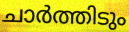
ചാർത്തിടും